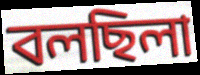
বলছিলা